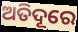
ଅତିଦୂରେ